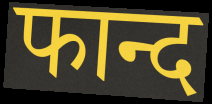
फान्द